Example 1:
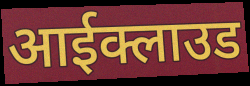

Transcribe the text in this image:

आईक्लाउड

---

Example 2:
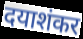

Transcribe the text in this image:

दयाशंकर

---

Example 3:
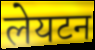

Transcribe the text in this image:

लेयटन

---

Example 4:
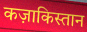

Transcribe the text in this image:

कज़ाकिस्तान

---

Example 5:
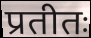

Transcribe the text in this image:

प्रतीतः